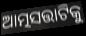
ଆତ୍ମସତ୍ତାଟିକୁ